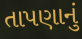
તાપણાનું